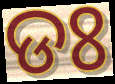
ଡଃ